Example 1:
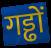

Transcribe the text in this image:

गड्ढों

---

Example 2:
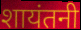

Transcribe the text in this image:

शायंतनी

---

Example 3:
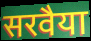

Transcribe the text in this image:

सरवैया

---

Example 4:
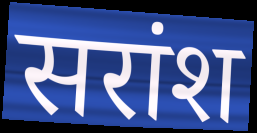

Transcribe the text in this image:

सरांश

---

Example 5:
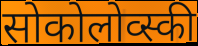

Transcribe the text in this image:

सोकोलोव्स्की